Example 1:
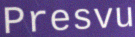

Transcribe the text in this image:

Presvu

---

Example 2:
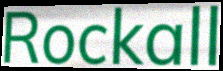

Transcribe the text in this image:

Rockall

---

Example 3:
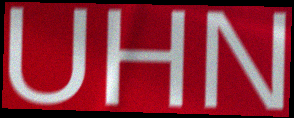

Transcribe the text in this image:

UHN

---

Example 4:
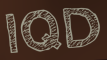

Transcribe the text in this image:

IQD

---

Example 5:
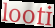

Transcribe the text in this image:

looti